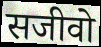
सजीवो